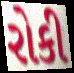
રોકી